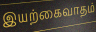
இயற்கைவாதம்